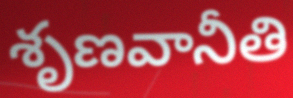
శృణవానీతి